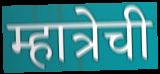
म्हात्रेची